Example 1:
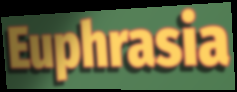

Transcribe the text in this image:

Euphrasia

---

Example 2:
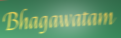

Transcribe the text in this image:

Bhagawatam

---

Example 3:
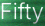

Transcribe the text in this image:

Fifty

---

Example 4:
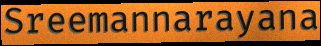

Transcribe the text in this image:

Sreemannarayana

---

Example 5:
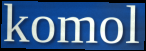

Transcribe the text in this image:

komol